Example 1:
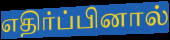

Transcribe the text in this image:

எதிர்ப்பினால்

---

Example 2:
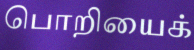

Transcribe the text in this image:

பொறியைக்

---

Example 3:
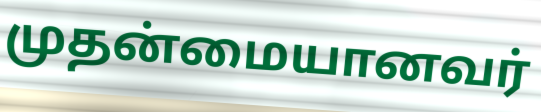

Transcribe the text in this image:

முதன்மையானவர்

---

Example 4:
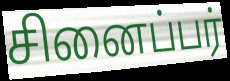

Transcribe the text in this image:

சினைப்பர்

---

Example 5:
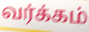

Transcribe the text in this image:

வர்க்கம்